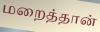
மறைத்தான்